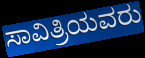
ಸಾವಿತ್ರಿಯವರು